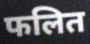
फलित